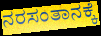
ನರಸಂತಾನಕ್ಕೆ